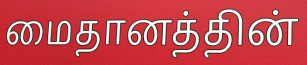
மைதானத்தின்